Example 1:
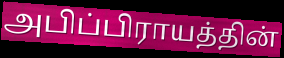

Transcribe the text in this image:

அபிப்பிராயத்தின்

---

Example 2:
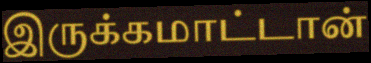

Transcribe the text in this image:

இருக்கமாட்டான்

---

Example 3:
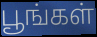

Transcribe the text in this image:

பூங்கள்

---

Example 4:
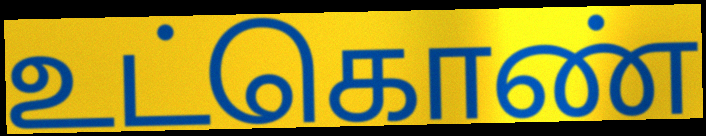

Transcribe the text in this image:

உட்கொண்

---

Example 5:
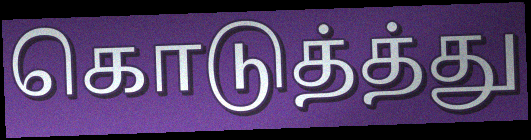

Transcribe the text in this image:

கொடுத்த்து